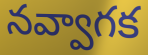
నవ్వాగక